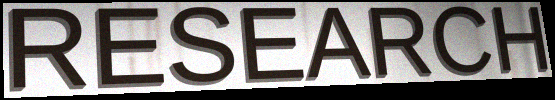
RESEARCH